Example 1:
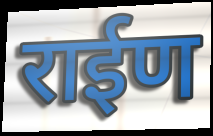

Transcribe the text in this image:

राईण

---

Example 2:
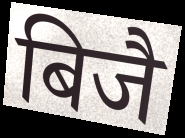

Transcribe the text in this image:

बिजै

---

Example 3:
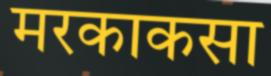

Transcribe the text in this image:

मरकाकसा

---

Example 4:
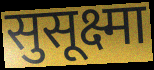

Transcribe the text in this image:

सुसूक्ष्मा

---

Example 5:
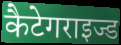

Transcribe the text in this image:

कैटेगराइज्ड